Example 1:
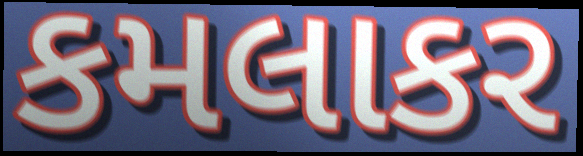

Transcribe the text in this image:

કમલાકર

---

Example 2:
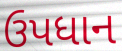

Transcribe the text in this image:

ઉપધાન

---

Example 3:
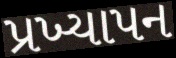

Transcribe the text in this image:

પ્રખ્યાપન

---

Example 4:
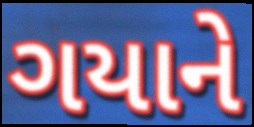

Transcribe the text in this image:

ગયાને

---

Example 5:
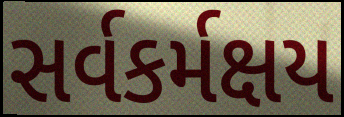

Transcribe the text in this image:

સર્વકર્મક્ષય